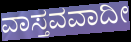
ವಾಸ್ತವವಾದೀ